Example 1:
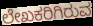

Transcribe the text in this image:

ಲೇಖಕರಿಗಿರುವ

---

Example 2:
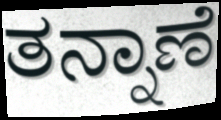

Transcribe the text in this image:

ತನ್ನಾಣೆ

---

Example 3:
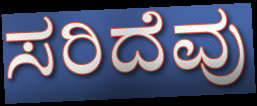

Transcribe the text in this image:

ಸರಿದೆವು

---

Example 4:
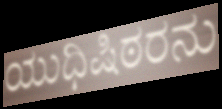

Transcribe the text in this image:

ಯುಧಿಷಿಠರನು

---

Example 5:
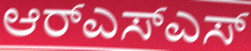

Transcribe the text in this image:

ಆರ್‌ಎಸ್ಎಸ್